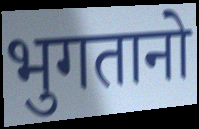
भुगतानो